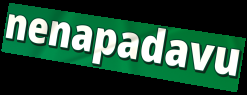
nenapadavu